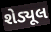
શેડ્યૂલ